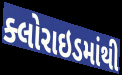
ક્લોરાઇડમાંથી